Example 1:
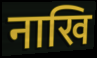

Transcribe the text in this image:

नाखि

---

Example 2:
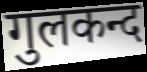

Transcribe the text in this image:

गुलकन्द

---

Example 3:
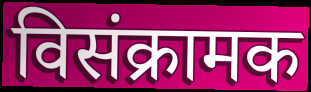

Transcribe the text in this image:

विसंक्रामक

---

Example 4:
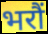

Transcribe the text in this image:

भरौं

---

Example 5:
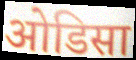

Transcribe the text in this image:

ओडिसा